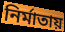
নির্মাতায়